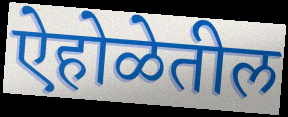
ऐहोळेतील